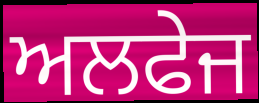
ਅਲਫੇਜ